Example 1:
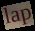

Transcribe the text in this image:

lap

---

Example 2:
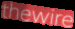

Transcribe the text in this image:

thewire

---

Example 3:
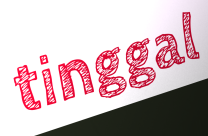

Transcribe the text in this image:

tinggal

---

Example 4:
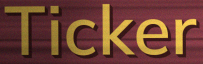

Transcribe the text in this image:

Ticker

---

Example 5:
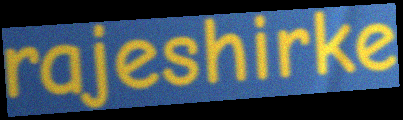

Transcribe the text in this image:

rajeshirke